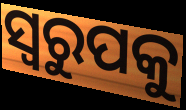
ସ୍ଵରୁପକୁ